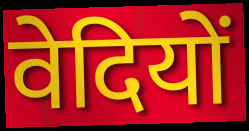
वेदियों